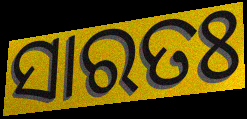
ସାରତଃ